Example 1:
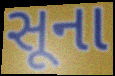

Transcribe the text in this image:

સૂના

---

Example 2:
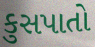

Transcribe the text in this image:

કુસપાતો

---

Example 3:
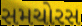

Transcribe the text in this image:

સમચોરસ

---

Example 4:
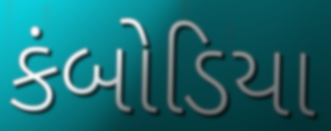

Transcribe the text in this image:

કંબોડિયા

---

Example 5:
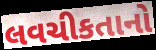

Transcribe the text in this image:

લવચીકતાનો